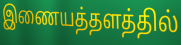
இணையத்தளத்தில்